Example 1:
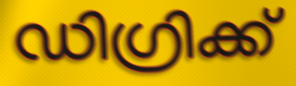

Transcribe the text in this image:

ഡിഗ്രിക്ക്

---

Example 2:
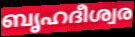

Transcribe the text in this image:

ബൃഹദീശ്വര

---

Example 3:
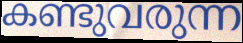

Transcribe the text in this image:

കണ്ടുവരുന്ന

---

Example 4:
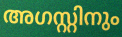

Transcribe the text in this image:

അഗസ്റ്റിനും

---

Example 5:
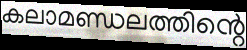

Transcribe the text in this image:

കലാമണ്ഡലത്തിന്റെ